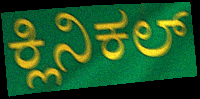
ಕ್ಲಿನಿಕಲ್